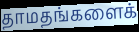
தாமதங்களைக்